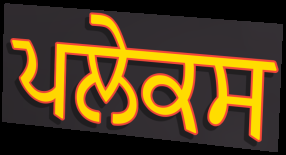
ਪਲੇਕਸ